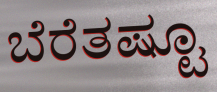
ಬೆರೆತಷ್ಟೂ